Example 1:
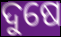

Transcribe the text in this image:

ଦୁଷେ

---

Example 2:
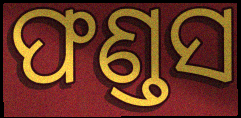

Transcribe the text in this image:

ଫଣ୍ଡସ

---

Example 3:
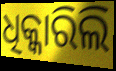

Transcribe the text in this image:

ଧିକ୍କାରିଲି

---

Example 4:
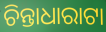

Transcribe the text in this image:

ଚିନ୍ତାଧାରାଟା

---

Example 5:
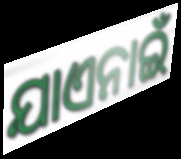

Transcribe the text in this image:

ଯାଏନାଇଁ